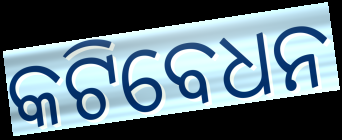
କଟିବେଧନ